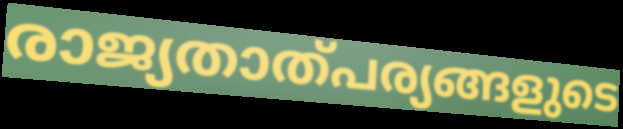
രാജ്യതാത്പര്യങ്ങളുടെ